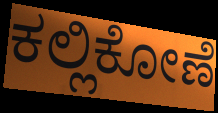
ಕಲ್ಲಿಕೋಣೆ